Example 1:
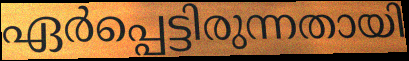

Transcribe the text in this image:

ഏർപ്പെട്ടിരുന്നതായി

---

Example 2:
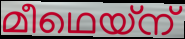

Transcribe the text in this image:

മീഥെയ്ന്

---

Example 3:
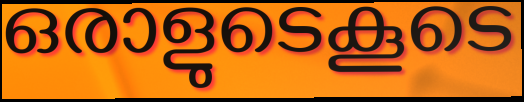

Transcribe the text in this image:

ഒരാളുടെകൂടെ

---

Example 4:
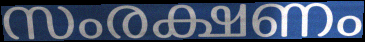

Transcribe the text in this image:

സംരക്ഷണം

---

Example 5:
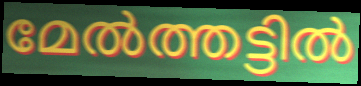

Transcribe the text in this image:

മേൽത്തട്ടിൽ